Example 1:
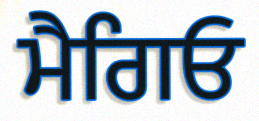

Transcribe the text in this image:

ਮੈਗਿਓ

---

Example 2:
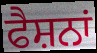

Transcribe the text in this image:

ਫੈਸ਼ਨਾਂ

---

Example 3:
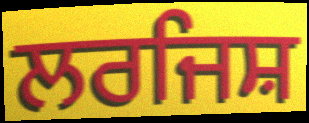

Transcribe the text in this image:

ਲਰਜਿਸ਼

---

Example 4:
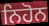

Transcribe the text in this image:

ਨਿਹੋਨ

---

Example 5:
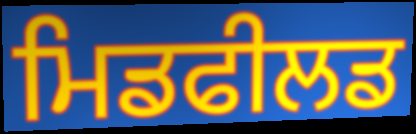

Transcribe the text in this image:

ਮਿਡਫੀਲਡ